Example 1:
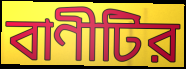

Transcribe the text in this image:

বাণীটির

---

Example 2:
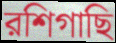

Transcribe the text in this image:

রশিগাছি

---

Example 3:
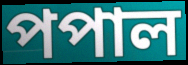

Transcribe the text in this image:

পপাল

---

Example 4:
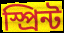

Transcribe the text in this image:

স্প্রিন্ট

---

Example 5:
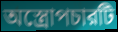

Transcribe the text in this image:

অস্ত্রোপচারটি